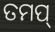
ତମପ୍